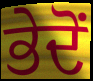
ਭੇਦੋਂ